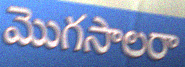
మొగసాలరా